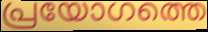
പ്രയോഗത്തെ